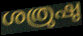
ശത്രുഷു